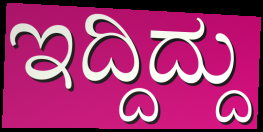
ಇದ್ದಿದ್ದು